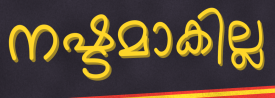
നഷ്ടമാകില്ല